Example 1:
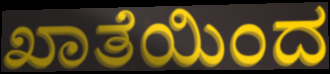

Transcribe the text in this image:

ಖಾತೆಯಿಂದ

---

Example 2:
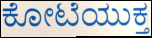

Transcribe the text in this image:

ಕೋಟೆಯುಕ್ತ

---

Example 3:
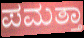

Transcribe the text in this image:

ಪಮತ್ತಾ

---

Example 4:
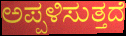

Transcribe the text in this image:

ಅಪ್ಪಳಿಸುತ್ತದೆ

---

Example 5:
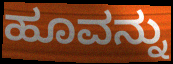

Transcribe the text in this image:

ಹೂವನ್ನು